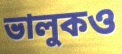
ভালুকও